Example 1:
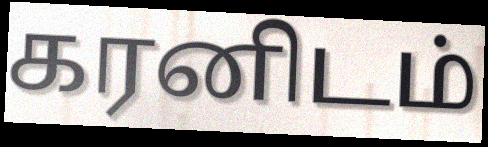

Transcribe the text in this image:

கரனிடம்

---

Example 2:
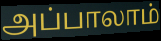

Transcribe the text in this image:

அப்பாலாம்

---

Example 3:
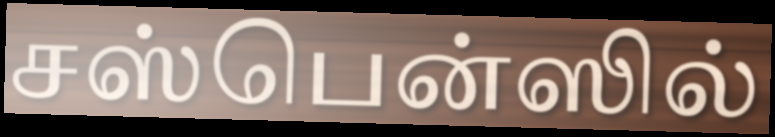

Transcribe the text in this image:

சஸ்பென்ஸில்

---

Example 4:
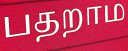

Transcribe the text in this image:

பதறாம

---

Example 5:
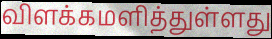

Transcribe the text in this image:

விளக்கமளித்துள்ளது